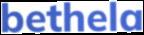
bethela